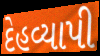
દેહવ્યાપી